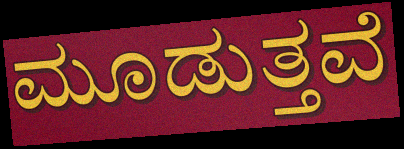
ಮೂಡುತ್ತವೆ